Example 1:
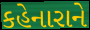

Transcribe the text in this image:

કહેનારાને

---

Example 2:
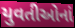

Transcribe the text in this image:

યુવતીઓનાં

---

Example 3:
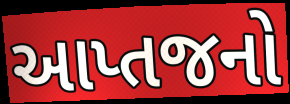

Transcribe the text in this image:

આપ્તજનો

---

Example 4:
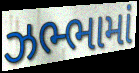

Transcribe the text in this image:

ઝભ્ભામાં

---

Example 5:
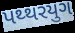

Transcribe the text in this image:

પથ્થરયુગ